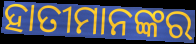
ହାତୀମାନଙ୍କର